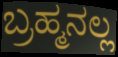
ಬ್ರಹ್ಮನಲ್ಲ